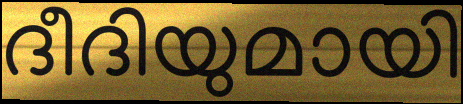
ദീദിയുമായി